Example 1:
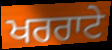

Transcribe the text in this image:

ਖਰਰਾਟੇ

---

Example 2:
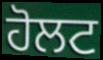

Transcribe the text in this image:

ਹੋਲਟ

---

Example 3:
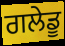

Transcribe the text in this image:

ਗਲੇਡੂ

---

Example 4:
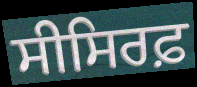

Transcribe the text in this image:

ਸੀਸਿਰਫ਼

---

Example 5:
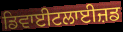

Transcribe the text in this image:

ਡਿਵਾਈਟਲਾਈਜ਼ਡ